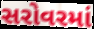
સરોવરમાં